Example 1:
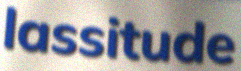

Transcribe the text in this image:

lassitude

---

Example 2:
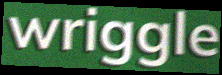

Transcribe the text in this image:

wriggle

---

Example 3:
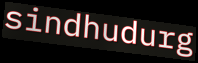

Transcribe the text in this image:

sindhudurg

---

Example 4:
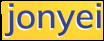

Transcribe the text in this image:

jonyei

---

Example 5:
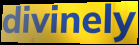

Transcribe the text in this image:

divinely